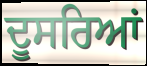
ਦੂਸਰਿਆਂ